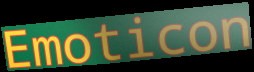
Emoticon